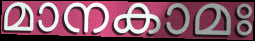
മാനകാമഃ